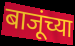
बाजूंच्या